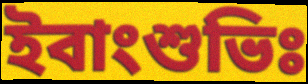
ইবাংশুভিঃ